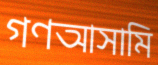
গণআসামি